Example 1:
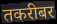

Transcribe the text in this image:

तकरीबर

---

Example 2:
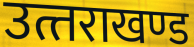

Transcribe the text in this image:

उत्‍तराखण्‍ड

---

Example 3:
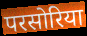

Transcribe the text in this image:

परसोरिया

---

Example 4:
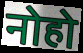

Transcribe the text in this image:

नोहो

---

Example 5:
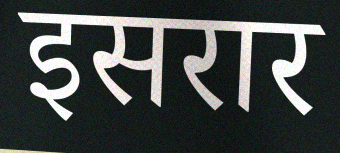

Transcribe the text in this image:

इसरार